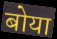
बोया